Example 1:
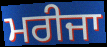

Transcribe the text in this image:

ਮਰੀਜਾ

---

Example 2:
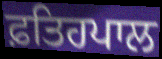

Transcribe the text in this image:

ਫ਼ਤਿਹਪਾਲ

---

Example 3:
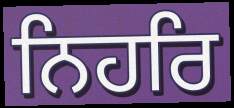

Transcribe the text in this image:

ਨਿਹਰਿ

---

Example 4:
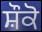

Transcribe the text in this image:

ਸ਼ੌਕੋ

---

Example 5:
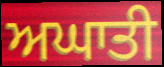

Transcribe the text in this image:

ਅਘਾਤੀ